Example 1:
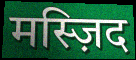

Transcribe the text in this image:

मस्ज़िद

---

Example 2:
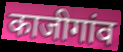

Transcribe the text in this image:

काजीगांव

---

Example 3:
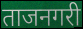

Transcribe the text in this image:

ताजनगरी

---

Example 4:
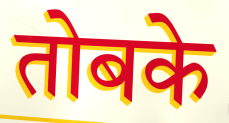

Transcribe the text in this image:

तोबके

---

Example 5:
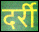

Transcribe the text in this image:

दर्री